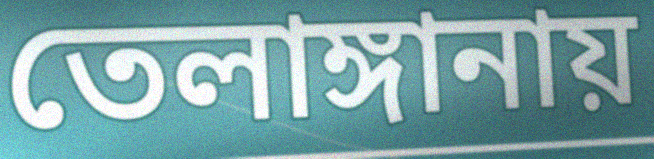
তেলাঙ্গানায়